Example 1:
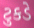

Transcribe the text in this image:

ટુકડે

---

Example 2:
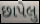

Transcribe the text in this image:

છાપેલુ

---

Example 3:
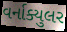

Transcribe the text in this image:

વર્નાક્યુલર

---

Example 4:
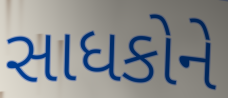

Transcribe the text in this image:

સાધકોને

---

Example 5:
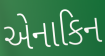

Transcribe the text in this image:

એનાકિન